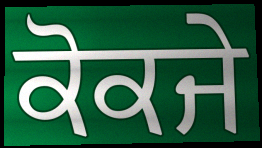
ਕੋਕਜੇ